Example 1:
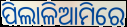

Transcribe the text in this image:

ପିଲାଳିଆମିରେ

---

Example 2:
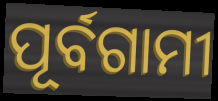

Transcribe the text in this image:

ପୂର୍ବଗାମୀ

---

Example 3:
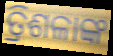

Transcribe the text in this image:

ତ୍ରିଶଳାଙ୍କ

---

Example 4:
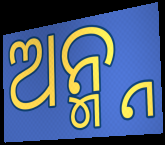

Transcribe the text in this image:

ଅନ୍ମ୍ନ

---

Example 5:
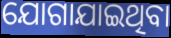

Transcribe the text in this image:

ଯୋଗାଯାଇଥିବା